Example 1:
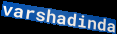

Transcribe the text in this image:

varshadinda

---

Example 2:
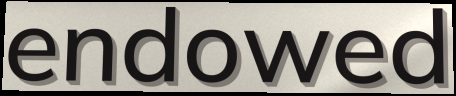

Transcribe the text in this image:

endowed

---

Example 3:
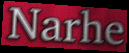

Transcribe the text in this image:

Narhe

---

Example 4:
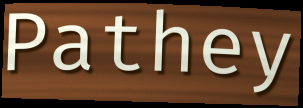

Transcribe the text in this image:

Pathey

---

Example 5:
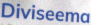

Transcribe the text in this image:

Diviseema